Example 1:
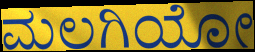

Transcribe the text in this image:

ಮಲಗಿಯೋ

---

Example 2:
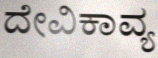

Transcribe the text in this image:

ದೇವಿಕಾವ್ಯ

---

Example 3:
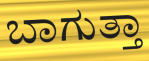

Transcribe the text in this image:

ಬಾಗುತ್ತಾ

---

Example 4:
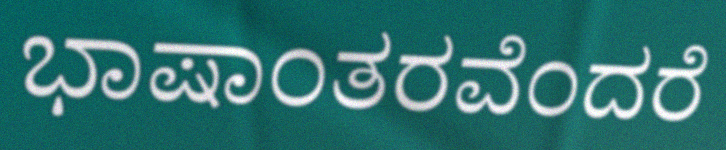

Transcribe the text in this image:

ಭಾಷಾಂತರವೆಂದರೆ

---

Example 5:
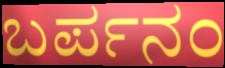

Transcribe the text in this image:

ಬರ್ಪನಂ